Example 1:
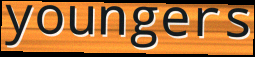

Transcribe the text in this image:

youngers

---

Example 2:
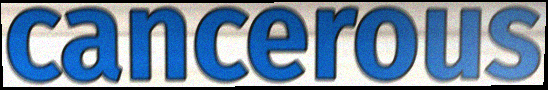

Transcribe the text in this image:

cancerous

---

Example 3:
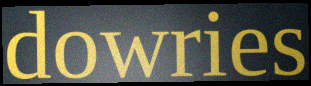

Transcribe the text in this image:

dowries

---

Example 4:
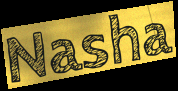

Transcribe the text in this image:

Nasha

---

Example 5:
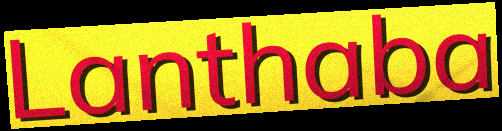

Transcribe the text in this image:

Lanthaba